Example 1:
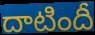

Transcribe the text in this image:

దాటిందీ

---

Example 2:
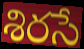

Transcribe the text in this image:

శిరసే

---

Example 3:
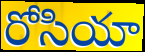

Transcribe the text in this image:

రోసియా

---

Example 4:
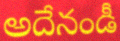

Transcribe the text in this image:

అదేనండీ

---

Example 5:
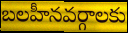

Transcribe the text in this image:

బలహీనవర్గాలకు